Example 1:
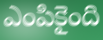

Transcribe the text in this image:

ఎంపికైంది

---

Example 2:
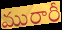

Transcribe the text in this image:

మురారీ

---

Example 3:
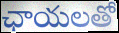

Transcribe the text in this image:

ఛాయలతో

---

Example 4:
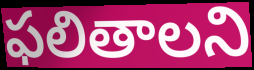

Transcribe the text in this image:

ఫలితాలని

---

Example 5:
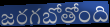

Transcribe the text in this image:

జరగబోతోంది